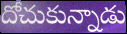
దోచుకున్నాడు